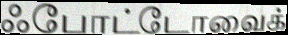
ஃபோட்டோவைக்